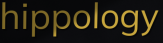
hippology